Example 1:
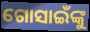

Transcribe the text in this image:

ଗୋସାଇଁଙ୍କୁ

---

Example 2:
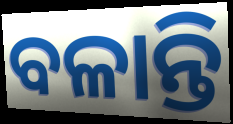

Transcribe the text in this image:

ବଳାନ୍ତି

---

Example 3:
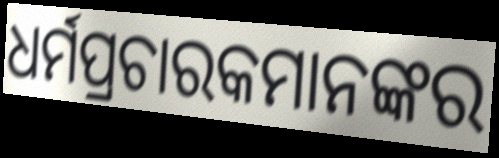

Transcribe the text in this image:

ଧର୍ମପ୍ରଚାରକମାନଙ୍କର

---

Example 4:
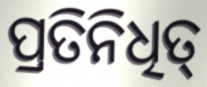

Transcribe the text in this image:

ପ୍ରତିନିଧିତ୍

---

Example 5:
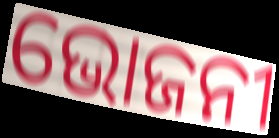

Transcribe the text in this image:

ଭୋଜନୀ